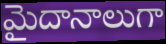
మైదానాలుగా